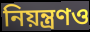
নিয়ন্ত্রণও